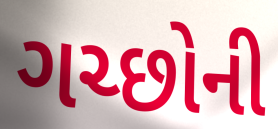
ગચ્છોની